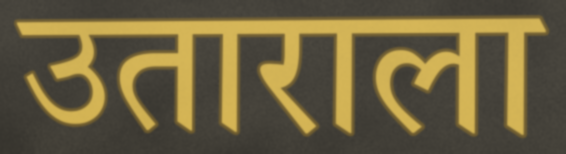
उताराला